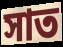
সাত